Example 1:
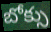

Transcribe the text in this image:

బోక్సు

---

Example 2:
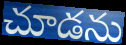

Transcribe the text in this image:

చూడను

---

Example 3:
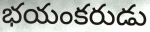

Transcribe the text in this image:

భయంకరుడు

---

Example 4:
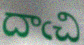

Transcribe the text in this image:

దాఁచి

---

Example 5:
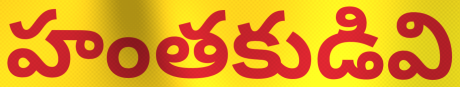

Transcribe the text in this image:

హంతకుడివి